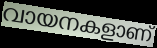
വായനകളാണ്